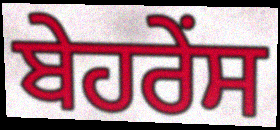
ਬੇਹਰੇਂਸ